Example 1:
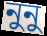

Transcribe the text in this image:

নুনু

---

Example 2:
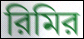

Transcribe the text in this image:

রিমির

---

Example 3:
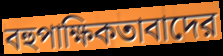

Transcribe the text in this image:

বহুপাক্ষিকতাবাদের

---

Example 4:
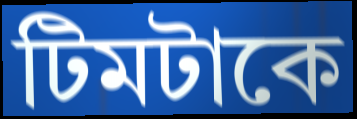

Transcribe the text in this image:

টিমটাকে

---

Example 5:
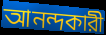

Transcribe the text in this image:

আনন্দকারী